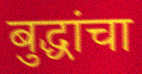
बुद्धांचा